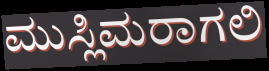
ಮುಸ್ಲಿಮರಾಗಲಿ